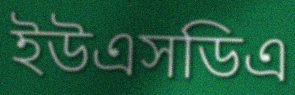
ইউএসডিএ